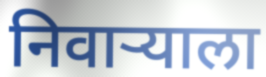
निवाऱ्याला